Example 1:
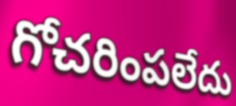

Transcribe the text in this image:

గోచరింపలేదు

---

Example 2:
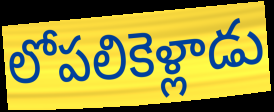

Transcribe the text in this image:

లోపలికెళ్లాడు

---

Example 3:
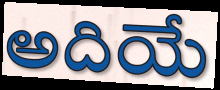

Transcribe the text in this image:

అదియే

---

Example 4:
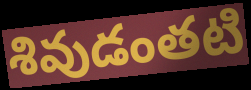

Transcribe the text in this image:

శివుడంతటి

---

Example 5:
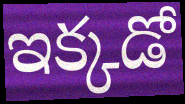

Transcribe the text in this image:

ఇక్కడో